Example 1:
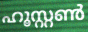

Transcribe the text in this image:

ഹൂസ്റ്റൺ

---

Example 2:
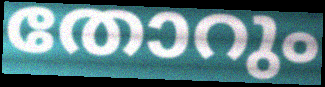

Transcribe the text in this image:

തോറും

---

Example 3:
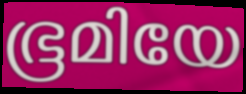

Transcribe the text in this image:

ഭൂമിയേ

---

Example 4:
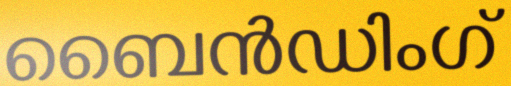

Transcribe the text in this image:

ബൈൻഡിംഗ്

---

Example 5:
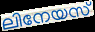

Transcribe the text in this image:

ലിനേയസ്